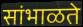
सांभाळते